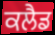
ਕਲੈਡ